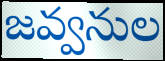
జవ్వనుల